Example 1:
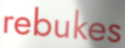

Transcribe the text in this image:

rebukes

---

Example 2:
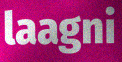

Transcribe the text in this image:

laagni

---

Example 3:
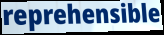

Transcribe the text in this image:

reprehensible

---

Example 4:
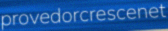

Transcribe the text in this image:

provedorcrescenet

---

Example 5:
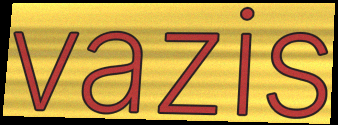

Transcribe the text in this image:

vazis